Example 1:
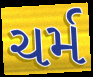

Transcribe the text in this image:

ચર્મ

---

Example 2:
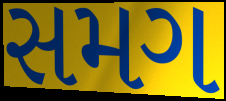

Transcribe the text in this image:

સમગ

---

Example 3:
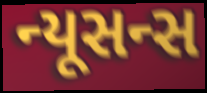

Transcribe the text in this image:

ન્યૂસન્સ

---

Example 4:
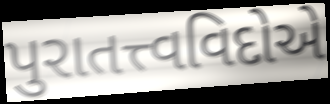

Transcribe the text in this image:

પુરાતત્ત્વવિદોએ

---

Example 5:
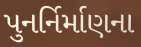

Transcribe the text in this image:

પુનર્નિર્માણના